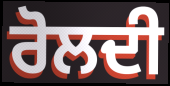
ਰੋਲਦੀ